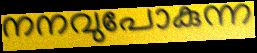
നനവുപോകുന്ന